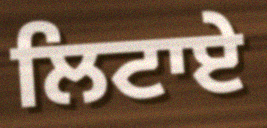
ਲਿਟਾਏ